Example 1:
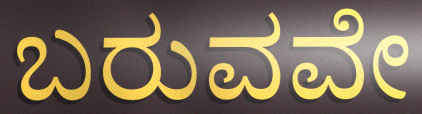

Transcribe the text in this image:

ಬರುವವೇ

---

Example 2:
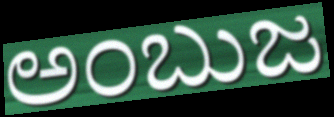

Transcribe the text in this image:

ಅಂಬುಜ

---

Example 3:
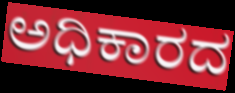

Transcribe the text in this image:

ಅಧಿಕಾರದ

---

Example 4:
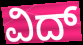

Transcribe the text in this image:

ವಿದ್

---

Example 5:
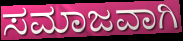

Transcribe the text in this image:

ಸಮಾಜವಾಗಿ